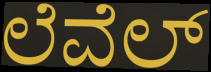
ಲೆವೆಲ್